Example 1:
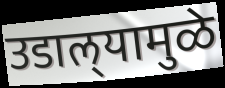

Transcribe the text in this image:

उडाल्यामुळे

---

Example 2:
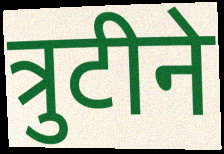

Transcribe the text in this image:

त्रुटीने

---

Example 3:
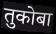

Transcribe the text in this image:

तुकोबा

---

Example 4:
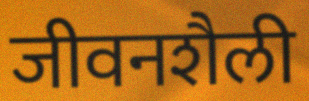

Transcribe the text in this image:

जीवनशैली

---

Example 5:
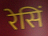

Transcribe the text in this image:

रेसिं